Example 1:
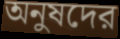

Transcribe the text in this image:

অনুষদের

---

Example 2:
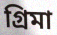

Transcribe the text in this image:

গ্রিমা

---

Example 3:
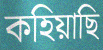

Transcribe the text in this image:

কহিয়াছি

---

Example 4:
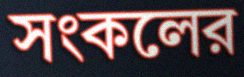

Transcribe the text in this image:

সংকলের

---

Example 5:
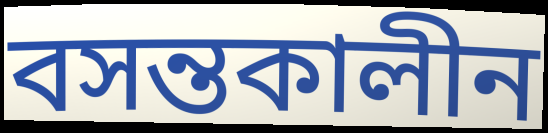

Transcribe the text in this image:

বসন্তকালীন